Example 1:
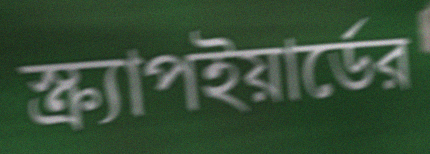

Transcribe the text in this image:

স্ক্র্যাপইয়ার্ডের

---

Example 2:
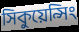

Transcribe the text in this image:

সিকুয়েন্সিং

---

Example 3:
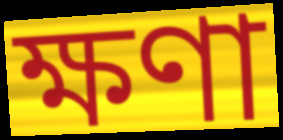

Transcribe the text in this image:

ক্ষণা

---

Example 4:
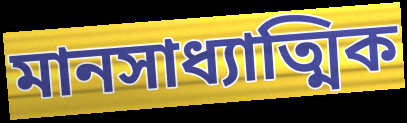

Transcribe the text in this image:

মানসাধ্যাত্মিক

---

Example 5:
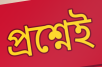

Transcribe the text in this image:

প্রশ্নেই